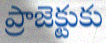
ప్రాజెక్టుకు